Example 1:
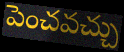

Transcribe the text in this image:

పెంచవచ్చు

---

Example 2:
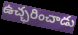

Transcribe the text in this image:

ఉచ్ఛరించాడు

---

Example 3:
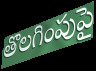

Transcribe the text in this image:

తొలగింపుపై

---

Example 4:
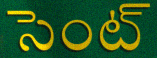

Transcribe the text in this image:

సెంట్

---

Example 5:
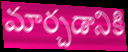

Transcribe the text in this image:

మార్చడానికి